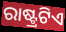
ରାଷ୍ଟ୍ରଟିଏ